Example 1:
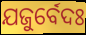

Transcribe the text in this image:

ଯଜୁର୍ବେଦଃ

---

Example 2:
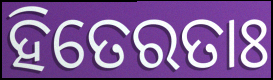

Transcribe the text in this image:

ହିତେରତାଃ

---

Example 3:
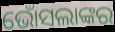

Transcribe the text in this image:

ଭୋଁସଲାଙ୍କର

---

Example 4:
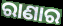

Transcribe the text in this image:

ରାଣାର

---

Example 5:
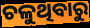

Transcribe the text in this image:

ଚଳୁଥିବାରୁ